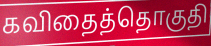
கவிதைத்தொகுதி